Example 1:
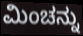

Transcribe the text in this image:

ಮಿಂಚನ್ನು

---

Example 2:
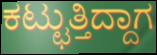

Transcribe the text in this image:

ಕಟ್ಟುತ್ತಿದ್ದಾಗ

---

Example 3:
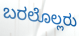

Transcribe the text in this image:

ಬರಲೊಲ್ಲರು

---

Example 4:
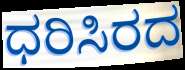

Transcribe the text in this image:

ಧರಿಸಿರದ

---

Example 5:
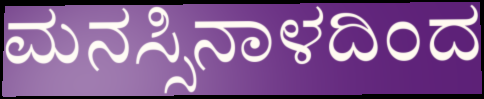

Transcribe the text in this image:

ಮನಸ್ಸಿನಾಳದಿಂದ